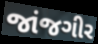
જાંજગીર